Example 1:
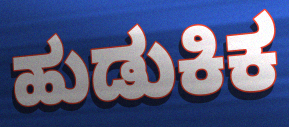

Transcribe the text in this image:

ಹುಡುಕಿಕ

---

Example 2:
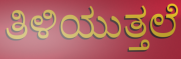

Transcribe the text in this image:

ತಿಳಿಯುತ್ತಲೆ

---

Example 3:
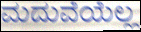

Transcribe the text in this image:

ಮದುವೆಯೆಲ್ಲ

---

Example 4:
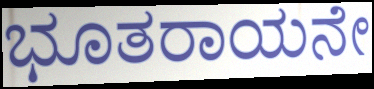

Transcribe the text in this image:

ಭೂತರಾಯನೇ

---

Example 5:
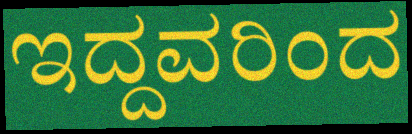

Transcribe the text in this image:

ಇದ್ದವರಿಂದ